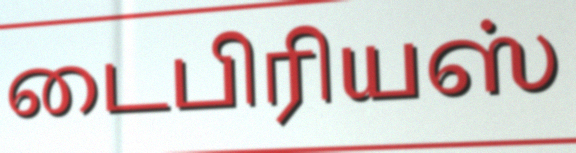
டைபிரியஸ்